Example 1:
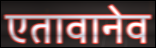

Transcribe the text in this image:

एतावानेव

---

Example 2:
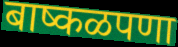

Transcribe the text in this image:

बाष्कळपणा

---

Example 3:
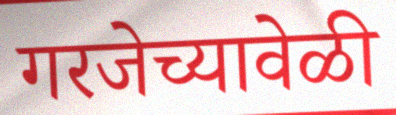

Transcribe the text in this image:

गरजेच्यावेळी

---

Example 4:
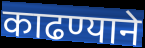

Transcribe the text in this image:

काढण्याने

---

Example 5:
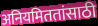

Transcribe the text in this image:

अनियमिततांसाठी